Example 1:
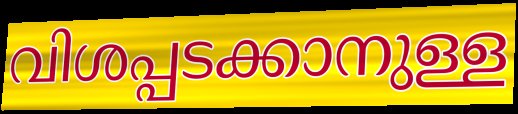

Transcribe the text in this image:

വിശപ്പടക്കാനുള്ള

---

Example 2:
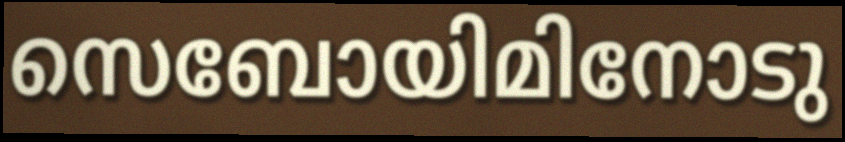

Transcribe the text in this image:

സെബോയിമിനോടു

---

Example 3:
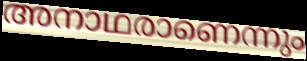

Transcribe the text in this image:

അനാഥരാണെന്നും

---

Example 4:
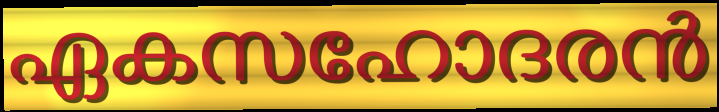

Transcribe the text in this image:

ഏകസഹോദരൻ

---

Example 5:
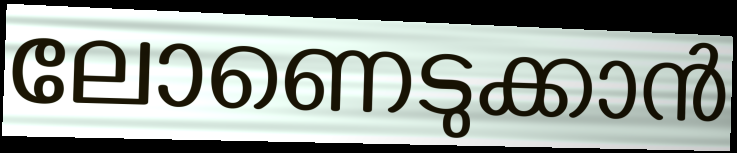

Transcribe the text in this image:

ലോണെടുക്കാൻ